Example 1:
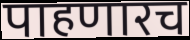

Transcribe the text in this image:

पाहणारच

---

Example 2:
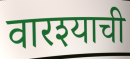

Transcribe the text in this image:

वारश्याची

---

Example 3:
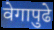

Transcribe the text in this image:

वेगापुढे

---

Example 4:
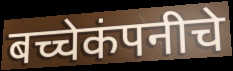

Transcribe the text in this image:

बच्चेकंपनीचे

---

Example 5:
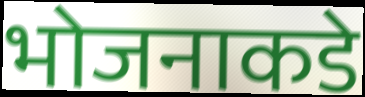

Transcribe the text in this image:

भोजनाकडे